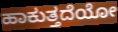
ಹಾಕುತ್ತದೆಯೋ